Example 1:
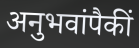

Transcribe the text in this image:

अनुभवांपैकीं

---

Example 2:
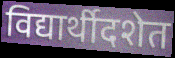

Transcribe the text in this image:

विद्यार्थीदशेत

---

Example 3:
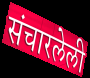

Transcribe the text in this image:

संचारलेली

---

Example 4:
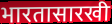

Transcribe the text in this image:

भारतासारखी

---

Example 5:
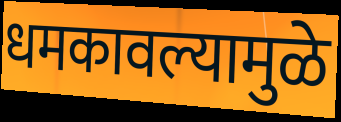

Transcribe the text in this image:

धमकावल्यामुळे